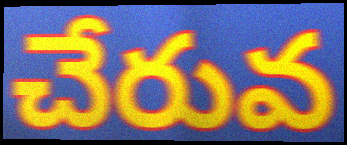
చేరువ